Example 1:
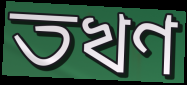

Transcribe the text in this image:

তখণ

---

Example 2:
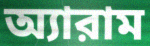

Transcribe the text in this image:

অ্যারাম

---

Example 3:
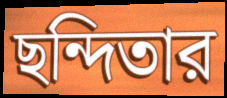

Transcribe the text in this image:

ছন্দিতার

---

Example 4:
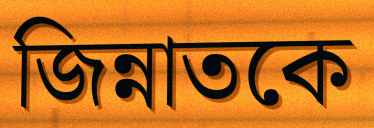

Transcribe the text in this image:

জিন্নাতকে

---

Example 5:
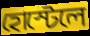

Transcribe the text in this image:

হোস্টেলে